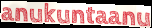
anukuntaanu